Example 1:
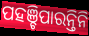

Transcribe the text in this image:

ପହଞ୍ଚିପାରନ୍ତିନି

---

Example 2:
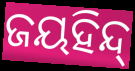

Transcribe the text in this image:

ଜୟହିନ୍ଦ୍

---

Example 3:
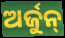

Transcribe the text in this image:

ଅର୍ଜୁନ୍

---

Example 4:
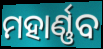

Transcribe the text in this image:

ମହାର୍ଣ୍ଣବ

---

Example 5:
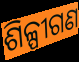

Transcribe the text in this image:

ଶିଳ୍ପୀଗଣ